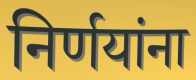
निर्णयांना